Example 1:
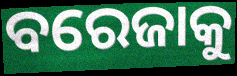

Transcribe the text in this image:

ବରେଜାକୁ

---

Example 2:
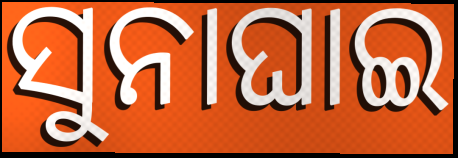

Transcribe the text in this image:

ସୁନାଘାଇ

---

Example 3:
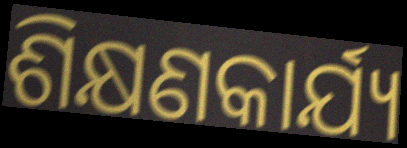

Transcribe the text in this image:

ଶିକ୍ଷଣକାର୍ଯ୍ୟ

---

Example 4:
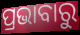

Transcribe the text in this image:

ପ୍ରଭାବାରୁ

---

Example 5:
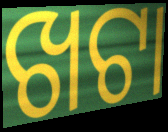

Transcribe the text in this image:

ଖଟା